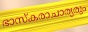
ഭാസ്കരാചാര്യരും